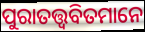
ପୁରାତତ୍ତ୍ୱବିତମାନେ